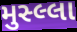
મુસ્લ્લા